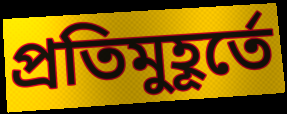
প্রতিমুহূর্তে